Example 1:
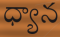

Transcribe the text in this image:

ధ్యాన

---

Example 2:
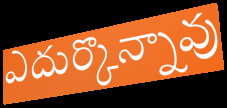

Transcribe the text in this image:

ఎదుర్కొన్నావు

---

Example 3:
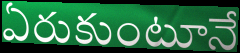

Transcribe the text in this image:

ఏరుకుంటూనే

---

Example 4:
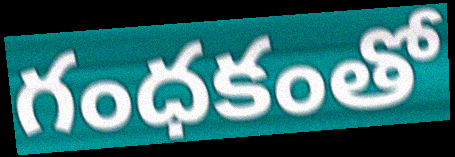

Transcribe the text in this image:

గంధకంతో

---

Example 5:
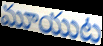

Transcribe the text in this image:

మూయుట